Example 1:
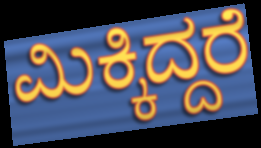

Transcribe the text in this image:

ಮಿಕ್ಕಿದ್ದರೆ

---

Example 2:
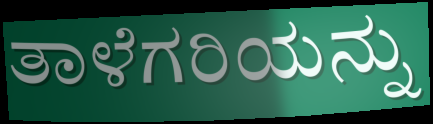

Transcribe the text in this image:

ತಾಳೆಗರಿಯನ್ನು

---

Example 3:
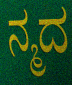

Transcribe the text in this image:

ನ್ಮದ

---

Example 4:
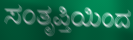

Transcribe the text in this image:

ಸಂತೃಪ್ತಿಯಿಂದ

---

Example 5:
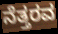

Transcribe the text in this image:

ನೆತ್ತರವ